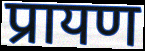
प्रायण